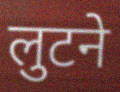
लुटने